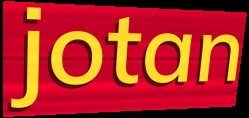
jotan